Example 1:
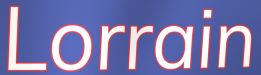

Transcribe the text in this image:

Lorrain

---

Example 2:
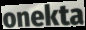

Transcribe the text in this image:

onekta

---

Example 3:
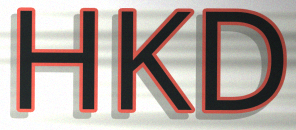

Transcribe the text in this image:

HKD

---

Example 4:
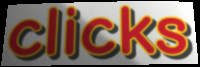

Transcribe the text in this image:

clicks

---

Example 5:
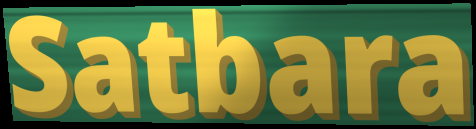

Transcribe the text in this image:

Satbara